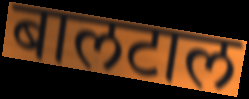
बालटाल